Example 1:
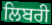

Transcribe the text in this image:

ਲਿਬਰੀ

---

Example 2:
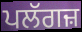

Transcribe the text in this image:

ਪਲੱਗਜ਼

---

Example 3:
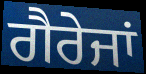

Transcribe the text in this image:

ਗੈਰੇਜਾਂ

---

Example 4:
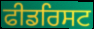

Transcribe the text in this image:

ਫੀਡਰਿਸਟ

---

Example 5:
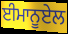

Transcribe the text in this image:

ਈਮਾਨੂਏਲ